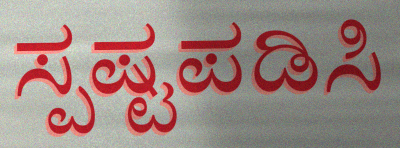
ಸ್ಪಷ್ಟಪಡಿಸಿ